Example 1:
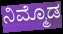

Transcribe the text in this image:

ನಿಮ್ಮೊಡ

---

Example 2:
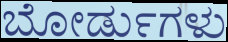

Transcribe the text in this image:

ಬೋರ್ಡುಗಳು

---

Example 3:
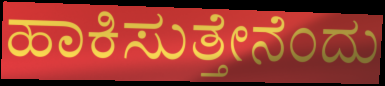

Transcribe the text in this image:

ಹಾಕಿಸುತ್ತೇನೆಂದು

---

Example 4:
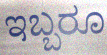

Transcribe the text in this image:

ಇಬ್ಬರೂ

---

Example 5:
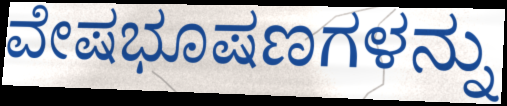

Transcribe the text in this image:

ವೇಷಭೂಷಣಗಳನ್ನು